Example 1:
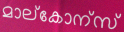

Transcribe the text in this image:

മാല്കോന്സ്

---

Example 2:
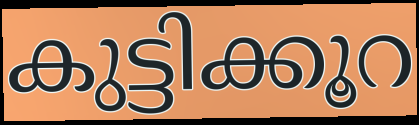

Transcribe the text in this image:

കുട്ടിക്കൂറ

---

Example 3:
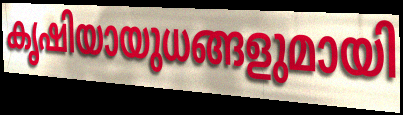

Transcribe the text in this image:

കൃഷിയായുധങ്ങളുമായി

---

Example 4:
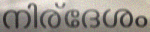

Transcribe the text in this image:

നിര്ദേശം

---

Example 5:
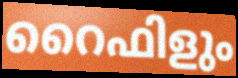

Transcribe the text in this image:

റൈഫിളും